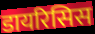
डायरिसिस